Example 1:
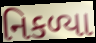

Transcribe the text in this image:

નિકળ્યા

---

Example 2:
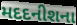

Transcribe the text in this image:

મદદનીશના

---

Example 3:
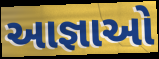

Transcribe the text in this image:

આજ્ઞાઓ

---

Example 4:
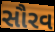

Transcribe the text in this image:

સૌરવ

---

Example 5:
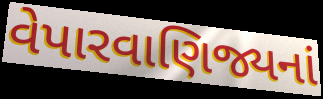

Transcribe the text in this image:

વેપારવાણિજ્યનાં